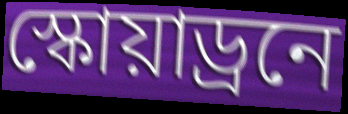
স্কোয়াড্রনে